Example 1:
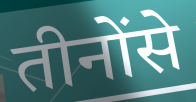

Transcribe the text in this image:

तीनोंसे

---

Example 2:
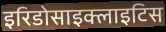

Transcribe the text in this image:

इरिडोसाइक्लाइटिस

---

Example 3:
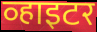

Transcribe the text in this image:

व्हाइटर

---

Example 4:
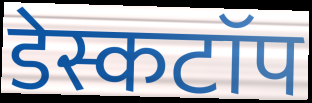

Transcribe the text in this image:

डेस्कटॉप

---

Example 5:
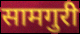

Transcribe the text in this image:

सामगुरी